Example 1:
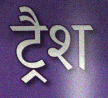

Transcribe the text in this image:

ट्रैश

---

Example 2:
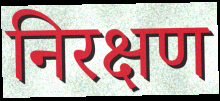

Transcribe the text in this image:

निरक्षण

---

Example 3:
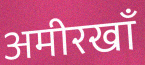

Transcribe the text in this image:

अमीरखाँ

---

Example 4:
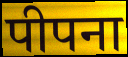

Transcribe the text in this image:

पीपना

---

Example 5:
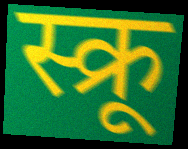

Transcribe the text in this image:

स्क्रू